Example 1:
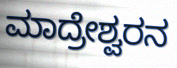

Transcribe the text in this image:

ಮಾದ್ರೇಶ್ವರನ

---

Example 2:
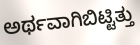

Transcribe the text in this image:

ಅರ್ಥವಾಗಿಬಿಟ್ಟಿತ್ತು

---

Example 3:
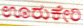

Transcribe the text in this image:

ಊರುಕೇರಿ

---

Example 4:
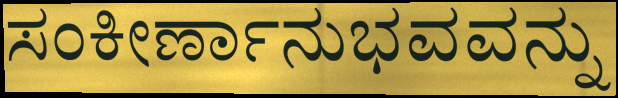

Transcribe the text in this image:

ಸಂಕೀರ್ಣಾನುಭವವನ್ನು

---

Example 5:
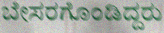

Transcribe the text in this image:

ಬೇಸರಗೊಂಡಿದ್ದರು